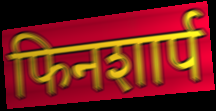
फिनशार्प